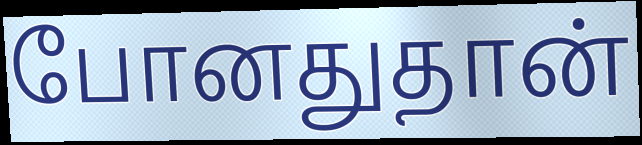
போனதுதான்